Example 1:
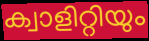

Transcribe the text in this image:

ക്വാളിറ്റിയും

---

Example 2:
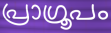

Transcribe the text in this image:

പ്രാഗ്രൂപം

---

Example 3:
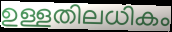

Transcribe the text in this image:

ഉള്ളതിലധികം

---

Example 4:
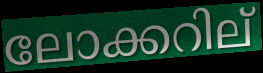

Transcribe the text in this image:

ലോക്കറില്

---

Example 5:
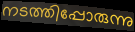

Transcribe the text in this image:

നടത്തിപ്പോരുന്നു